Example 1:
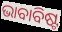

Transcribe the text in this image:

ଭାବାବିଷ୍ଟ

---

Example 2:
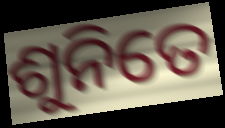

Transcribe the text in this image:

ଶୁନିତେ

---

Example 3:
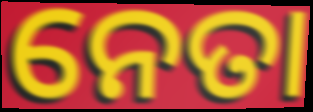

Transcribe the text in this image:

ନେତା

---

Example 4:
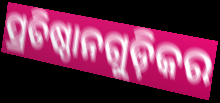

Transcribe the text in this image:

ପ୍ରତିଷ୍ଠାନଗୁଡ଼ିକର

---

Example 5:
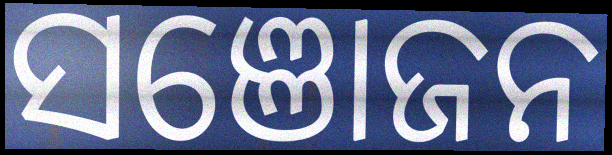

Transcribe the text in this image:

ସଞୋଜନ